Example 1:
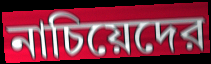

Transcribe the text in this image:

নাচিয়েদের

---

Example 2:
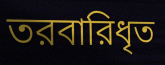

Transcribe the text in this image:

তরবারিধৃত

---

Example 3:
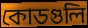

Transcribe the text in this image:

কোডগুলি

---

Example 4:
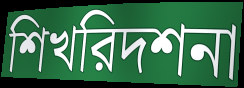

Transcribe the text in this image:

শিখরিদশনা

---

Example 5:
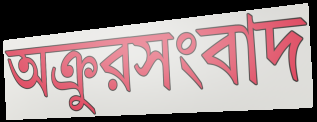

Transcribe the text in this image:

অক্রুরসংবাদ